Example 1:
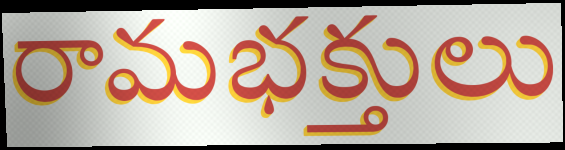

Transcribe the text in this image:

రామభక్తులు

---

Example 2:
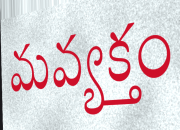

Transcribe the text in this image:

మవ్యక్తం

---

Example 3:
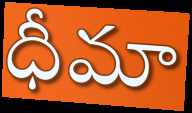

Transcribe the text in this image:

ధీమా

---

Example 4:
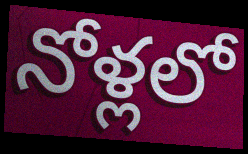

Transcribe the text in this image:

నోళ్లలో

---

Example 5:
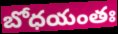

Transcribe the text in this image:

బోధయంతః